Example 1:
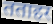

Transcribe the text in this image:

तताहर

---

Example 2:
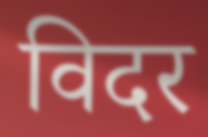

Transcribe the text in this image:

विदर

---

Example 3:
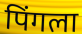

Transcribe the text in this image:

पिंगला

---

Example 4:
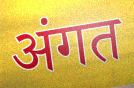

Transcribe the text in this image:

अंगत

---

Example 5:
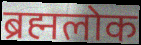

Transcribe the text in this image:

ब्रह्मलोक